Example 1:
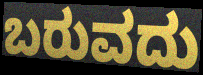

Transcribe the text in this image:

ಬರುವದು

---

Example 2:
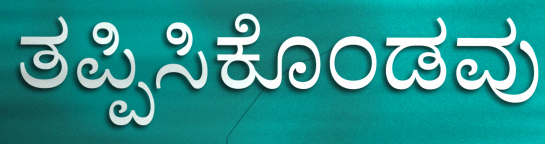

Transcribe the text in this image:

ತಪ್ಪಿಸಿಕೊಂಡವು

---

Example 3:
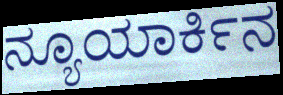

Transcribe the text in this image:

ನ್ಯೂಯಾರ್ಕಿನ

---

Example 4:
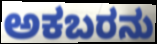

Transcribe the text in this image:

ಅಕಬರನು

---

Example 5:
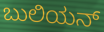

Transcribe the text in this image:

ಬುಲಿಯನ್